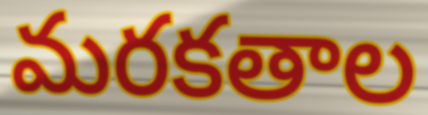
మరకతాల